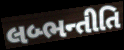
લબ્ભન્તીતિ